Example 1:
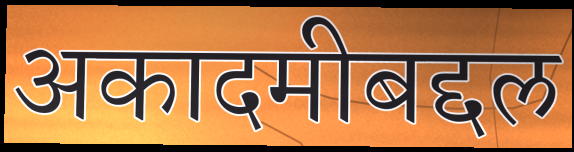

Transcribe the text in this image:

अकादमीबद्दल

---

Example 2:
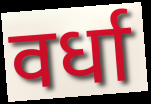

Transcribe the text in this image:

वर्धा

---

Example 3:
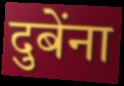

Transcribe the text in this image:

दुबेंना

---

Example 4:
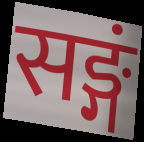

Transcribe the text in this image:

सङ्गं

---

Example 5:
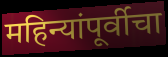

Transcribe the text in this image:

महिन्यांपूर्वीचा